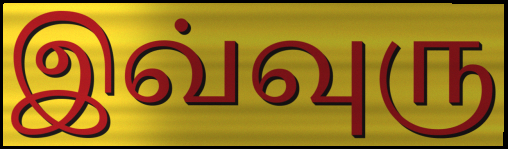
இவ்வுரு